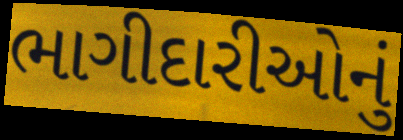
ભાગીદારીઓનું